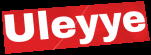
Uleyye